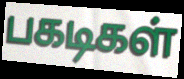
பகடிகள்